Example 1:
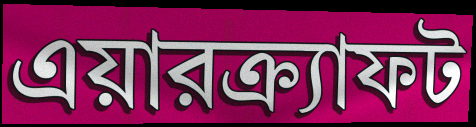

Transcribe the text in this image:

এয়ারক্র্যাফট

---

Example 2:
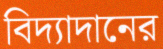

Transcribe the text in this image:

বিদ্যাদানের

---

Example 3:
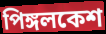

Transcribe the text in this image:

পিঙ্গলকেশ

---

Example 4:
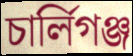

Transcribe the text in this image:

চার্লিগঞ্জ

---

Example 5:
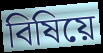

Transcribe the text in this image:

বিষিয়ে